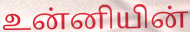
உன்னியின்